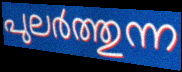
പുലർത്തുന്ന